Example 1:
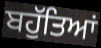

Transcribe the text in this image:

ਬਹੁੱਤਿਆਂ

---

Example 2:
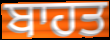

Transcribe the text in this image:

ਬਾਹਤ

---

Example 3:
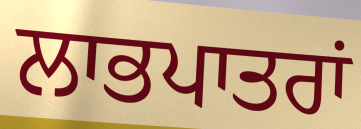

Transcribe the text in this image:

ਲਾਭਪਾਤਰਾਂ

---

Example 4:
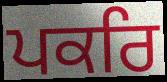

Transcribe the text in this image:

ਪਕਰਿ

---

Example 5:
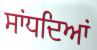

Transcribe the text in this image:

ਸਾਂਧਦਿਆਂ